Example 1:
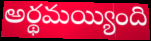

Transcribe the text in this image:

అర్థమయ్యింది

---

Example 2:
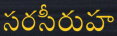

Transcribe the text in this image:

సరసీరుహ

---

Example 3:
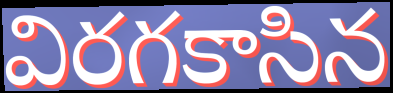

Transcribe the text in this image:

విరగకాసిన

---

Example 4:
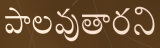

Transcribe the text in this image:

పాలవుతారని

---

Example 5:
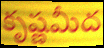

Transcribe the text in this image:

కృష్ణమీద